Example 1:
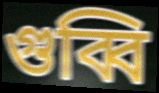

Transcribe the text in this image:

গুব্বি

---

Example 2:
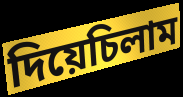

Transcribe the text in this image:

দিয়েচিলাম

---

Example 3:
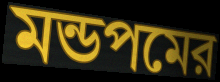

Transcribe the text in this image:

মন্ডপমের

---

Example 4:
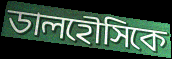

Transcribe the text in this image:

ডালহৌসিকে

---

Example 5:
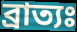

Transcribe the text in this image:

ব্রাত্যঃ